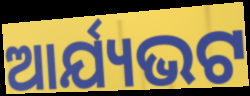
ଆର୍ଯ୍ୟଭଟ